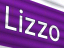
Lizzo